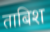
ताबिश